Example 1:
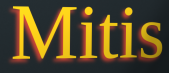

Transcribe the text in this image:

Mitis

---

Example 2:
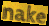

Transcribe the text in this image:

nake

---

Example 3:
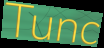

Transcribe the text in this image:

Tunc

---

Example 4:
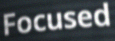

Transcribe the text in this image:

Focused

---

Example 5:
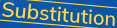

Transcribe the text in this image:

Substitution